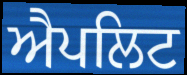
ਐਪਲਿਟ